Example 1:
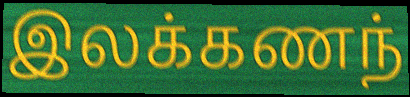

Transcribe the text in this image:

இலக்கணந்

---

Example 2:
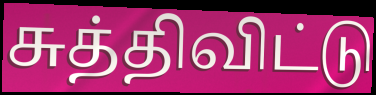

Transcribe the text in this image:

சுத்திவிட்டு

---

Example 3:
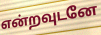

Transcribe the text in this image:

என்றவுடனே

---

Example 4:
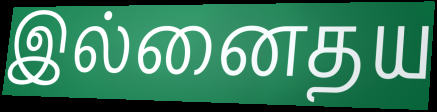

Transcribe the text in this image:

இல்னைதய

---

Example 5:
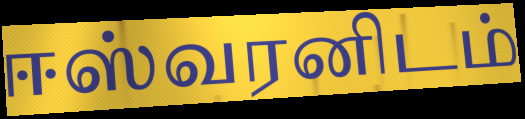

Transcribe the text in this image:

ஈஸ்வரனிடம்